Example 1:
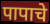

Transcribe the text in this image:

पापाचे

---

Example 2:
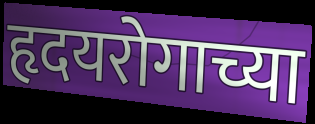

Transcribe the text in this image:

हृदयरोगाच्या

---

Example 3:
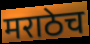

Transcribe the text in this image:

मराठेच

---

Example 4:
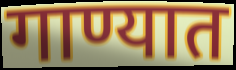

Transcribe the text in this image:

गाण्यात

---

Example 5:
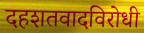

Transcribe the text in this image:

दहशतवादविरोधी